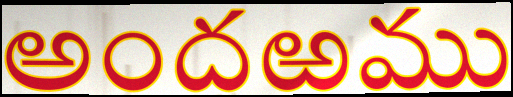
అందఱము